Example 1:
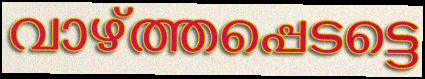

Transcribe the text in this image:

വാഴ്ത്തപ്പെടട്ടെ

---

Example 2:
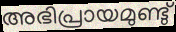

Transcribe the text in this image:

അഭിപ്രായമുണ്ടു്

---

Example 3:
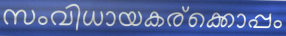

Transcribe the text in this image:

സംവിധായകര്ക്കൊപ്പം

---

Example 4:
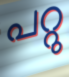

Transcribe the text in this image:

പറ്റു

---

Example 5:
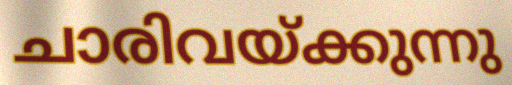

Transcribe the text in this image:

ചാരിവയ്ക്കുന്നു